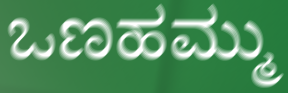
ಒಣಹಮ್ಮು